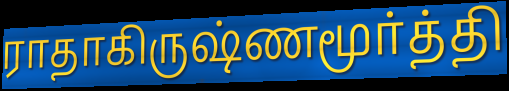
ராதாகிருஷ்ணமூர்த்தி